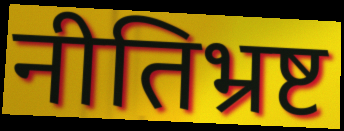
नीतिभ्रष्ट